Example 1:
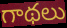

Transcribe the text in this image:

గాథలు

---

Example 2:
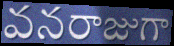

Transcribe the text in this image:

వనరాజుగా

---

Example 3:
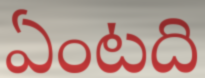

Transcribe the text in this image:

ఏంటది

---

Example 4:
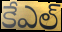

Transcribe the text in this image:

కేఎల్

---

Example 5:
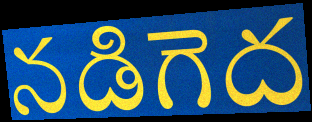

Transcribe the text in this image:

నడిగెద